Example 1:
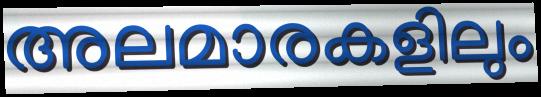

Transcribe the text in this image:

അലമാരകളിലും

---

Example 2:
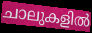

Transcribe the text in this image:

ചാലുകളിൽ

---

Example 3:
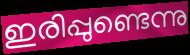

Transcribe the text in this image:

ഇരിപ്പുണ്ടെന്നു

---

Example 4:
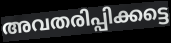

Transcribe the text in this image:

അവതരിപ്പിക്കട്ടെ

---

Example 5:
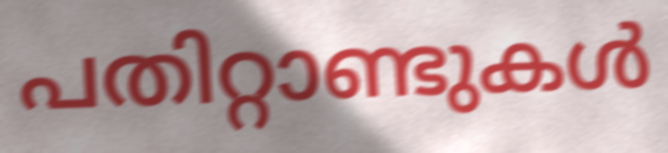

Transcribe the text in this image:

പതിറ്റാണ്ടുകൾ